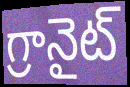
గ్రానైట్